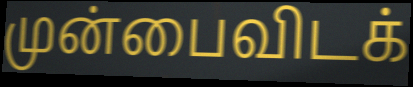
முன்பைவிடக்